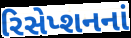
રિસેપ્શનનાં